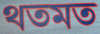
থতমত